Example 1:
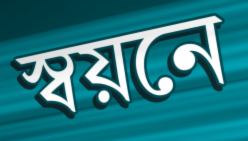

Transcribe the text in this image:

স্বয়নে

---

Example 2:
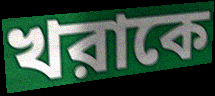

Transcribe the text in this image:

খরাকে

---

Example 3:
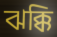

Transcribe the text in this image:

ঝক্কি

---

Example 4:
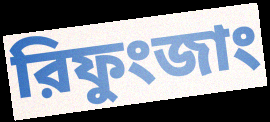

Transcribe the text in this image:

রিফুংজাং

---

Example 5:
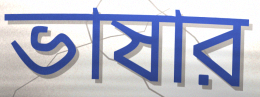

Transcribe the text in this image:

ভাষার